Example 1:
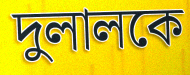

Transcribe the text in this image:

দুলালকে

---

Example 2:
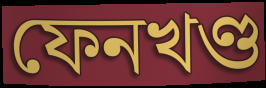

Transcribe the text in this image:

ফেনখণ্ড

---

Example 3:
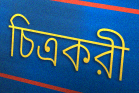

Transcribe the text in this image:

চিত্রকরী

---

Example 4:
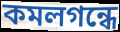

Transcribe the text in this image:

কমলগন্ধে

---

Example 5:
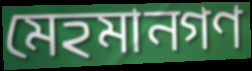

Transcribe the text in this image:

মেহমানগণ